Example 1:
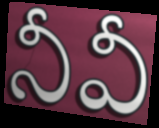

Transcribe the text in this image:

నీవీ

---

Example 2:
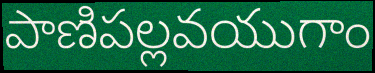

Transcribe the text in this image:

పాణిపల్లవయుగాం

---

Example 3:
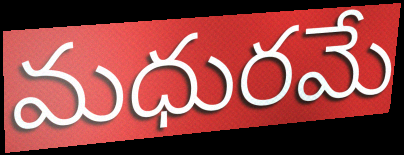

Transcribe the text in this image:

మధురమే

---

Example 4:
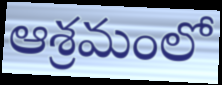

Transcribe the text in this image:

ఆశ్రమంలో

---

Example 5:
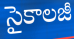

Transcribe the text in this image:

సైకాలజీ